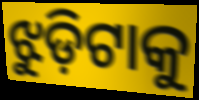
ଝୁଡ଼ିଟାକୁ